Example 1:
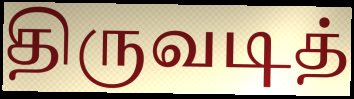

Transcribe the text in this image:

திருவடித்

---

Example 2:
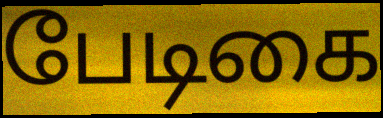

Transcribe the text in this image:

பேடிகை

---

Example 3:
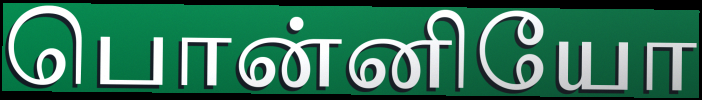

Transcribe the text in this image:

பொன்னியோ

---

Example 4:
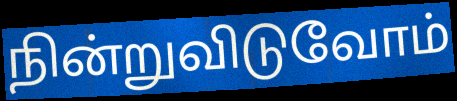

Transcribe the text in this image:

நின்றுவிடுவோம்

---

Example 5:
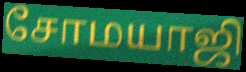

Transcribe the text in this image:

சோமயாஜி